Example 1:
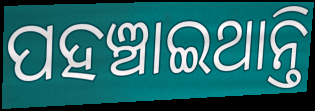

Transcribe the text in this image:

ପହଞ୍ଚାଇଥାନ୍ତି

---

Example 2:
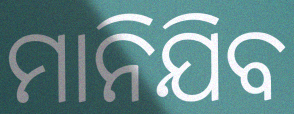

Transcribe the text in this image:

ମାନିଯିବ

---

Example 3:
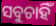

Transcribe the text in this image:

ସବୁଚାହିଁ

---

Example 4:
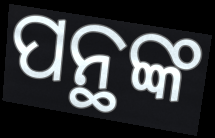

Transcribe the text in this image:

ପନ୍ଥଙ୍କ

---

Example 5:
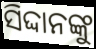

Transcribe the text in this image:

ସିଦ୍ଦାନଙ୍କୁ